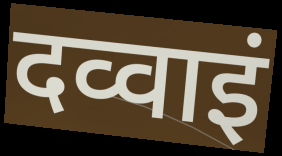
दव्वाइं